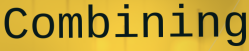
Combining